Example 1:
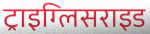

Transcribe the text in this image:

ट्राइग्लिसराइड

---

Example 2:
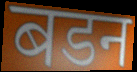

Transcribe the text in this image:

बडन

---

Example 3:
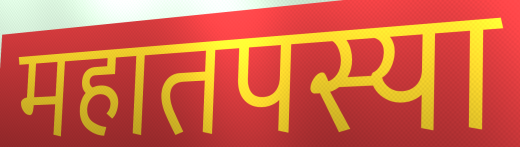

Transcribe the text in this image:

महातपस्या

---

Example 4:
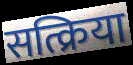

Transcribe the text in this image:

सत्क्रिया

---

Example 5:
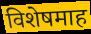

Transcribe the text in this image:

विशेषमाह